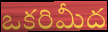
ఒకరిమీద